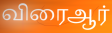
விரைஆர்